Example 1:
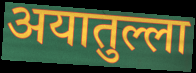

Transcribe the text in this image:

अयातुल्ला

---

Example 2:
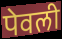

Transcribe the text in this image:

पेवली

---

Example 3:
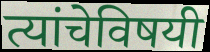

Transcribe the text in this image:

त्यांचेविषयी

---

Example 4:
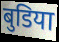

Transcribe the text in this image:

बुडिया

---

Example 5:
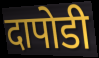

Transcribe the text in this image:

दापोडी